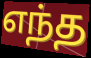
எந்த